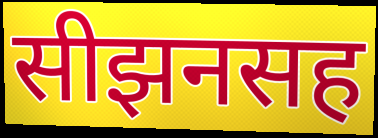
सीझनसह